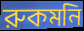
রুকমনি